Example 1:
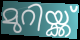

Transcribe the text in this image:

മുറിയ്ക്ക്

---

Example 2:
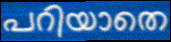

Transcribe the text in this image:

പറിയാതെ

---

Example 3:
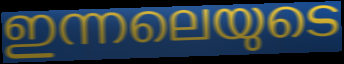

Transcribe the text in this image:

ഇന്നലെയുടെ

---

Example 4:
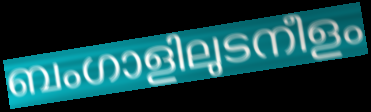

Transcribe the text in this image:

ബംഗാളിലുടനീളം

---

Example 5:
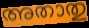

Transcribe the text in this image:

അതാതു